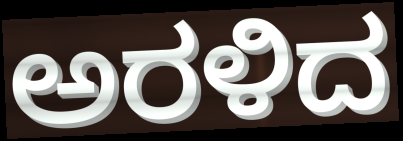
ಅರಳಿದ